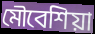
মৌবেশিয়া